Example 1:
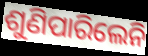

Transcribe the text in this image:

ଶୁଣିପାରିଲେନି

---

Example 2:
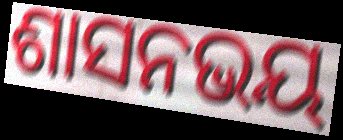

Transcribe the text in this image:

ଶାସନଭୟ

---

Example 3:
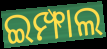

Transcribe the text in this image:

ଇମ୍ଫାଲ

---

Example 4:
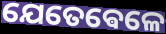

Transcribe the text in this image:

ଯେତେଵେଳେ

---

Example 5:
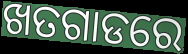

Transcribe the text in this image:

ଖତଗାଡରେ